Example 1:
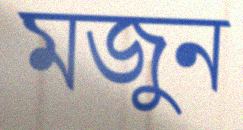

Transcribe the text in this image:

মজুন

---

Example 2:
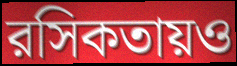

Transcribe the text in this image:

রসিকতায়ও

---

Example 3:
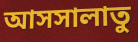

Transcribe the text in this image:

আসসালাতু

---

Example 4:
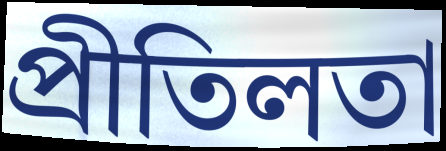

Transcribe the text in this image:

প্রীতিলতা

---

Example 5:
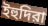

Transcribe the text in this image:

ইহুদিরা